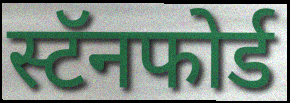
स्टॅनफोर्ड